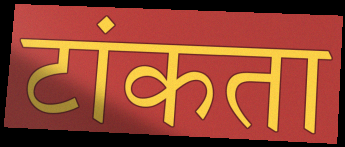
टांकता